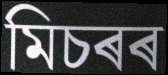
মিচৰৰ